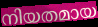
നിയതമായ